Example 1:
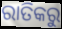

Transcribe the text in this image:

ରାତିକରୁ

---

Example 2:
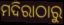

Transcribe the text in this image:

ମଦିରାଠାରୁ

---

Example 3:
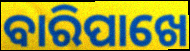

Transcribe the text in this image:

ବାରିପାଖେ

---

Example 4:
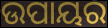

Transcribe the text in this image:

ଉପାୟର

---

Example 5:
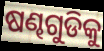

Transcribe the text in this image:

ଷଣ୍ଢଗୁଡିକୁ